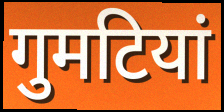
गुमटियां